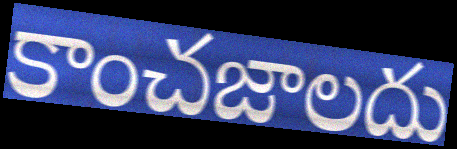
కాంచజాలదు